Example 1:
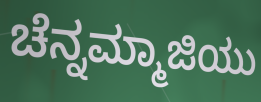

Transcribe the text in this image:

ಚೆನ್ನಮ್ಮಾಜಿಯು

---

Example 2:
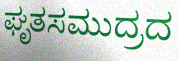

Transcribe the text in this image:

ಘೃತಸಮುದ್ರದ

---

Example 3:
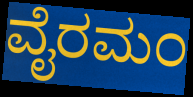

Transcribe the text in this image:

ವೈರಮಂ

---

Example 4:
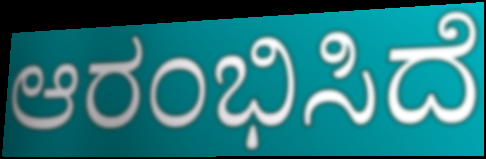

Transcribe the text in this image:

ಆರಂಭಿಸಿದೆ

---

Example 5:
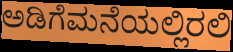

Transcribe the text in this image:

ಅಡಿಗೆಮನೆಯಲ್ಲಿರಲಿ